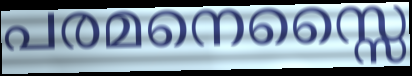
പരമനെസ്സൈ